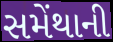
સમેંથાની